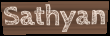
Sathyan